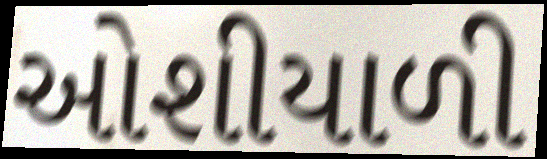
ઓશીયાળી